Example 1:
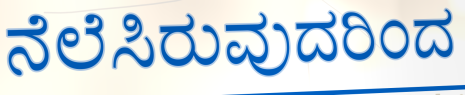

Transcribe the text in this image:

ನೆಲೆಸಿರುವುದರಿಂದ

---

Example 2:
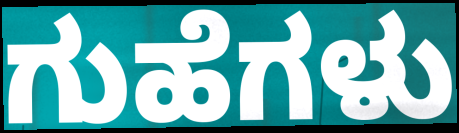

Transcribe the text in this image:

ಗುಹೆಗಳು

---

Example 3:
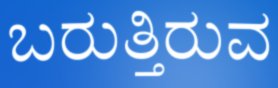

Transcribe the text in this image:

ಬರುತ್ತಿರುವ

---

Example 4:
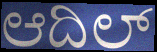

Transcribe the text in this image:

ಆದಿಲ್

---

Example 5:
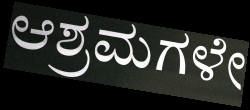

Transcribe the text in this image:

ಆಶ್ರಮಗಳೇ